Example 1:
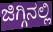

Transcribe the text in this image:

ಜಿಗ್ಗಿನಲ್ಲಿ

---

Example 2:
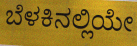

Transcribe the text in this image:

ಬೆಳಕಿನಲ್ಲಿಯೇ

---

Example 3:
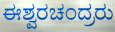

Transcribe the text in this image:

ಈಶ್ವರಚಂದ್ರರು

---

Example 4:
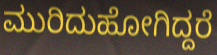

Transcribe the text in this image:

ಮುರಿದುಹೋಗಿದ್ದರೆ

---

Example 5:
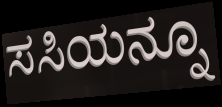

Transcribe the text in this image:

ಸಸಿಯನ್ನೂ